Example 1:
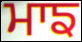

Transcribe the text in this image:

ਮਾਙ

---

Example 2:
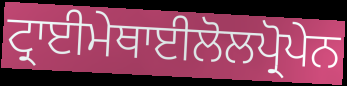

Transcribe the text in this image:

ਟ੍ਰਾਈਮੇਥਾਈਲੋਲਪ੍ਰੋਪੇਨ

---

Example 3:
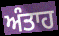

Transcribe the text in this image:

ਅੰਤਾਹ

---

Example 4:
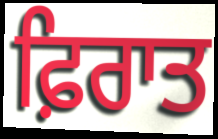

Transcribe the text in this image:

ਫ਼ਿਰਾਤ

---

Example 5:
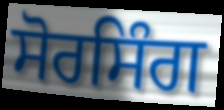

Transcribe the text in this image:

ਸੋਰਸਿੰਗ